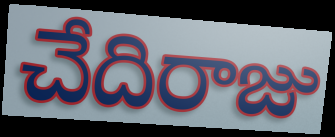
చేదిరాజు